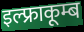
इल्फ्राकूम्ब